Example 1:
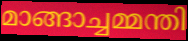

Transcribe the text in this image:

മാങ്ങാച്ചമ്മന്തി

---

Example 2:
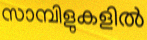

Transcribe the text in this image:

സാമ്പിളുകളിൽ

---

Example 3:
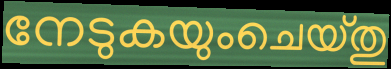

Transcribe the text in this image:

നേടുകയുംചെയ്തു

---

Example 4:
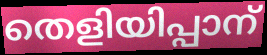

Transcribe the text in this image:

തെളിയിപ്പാന്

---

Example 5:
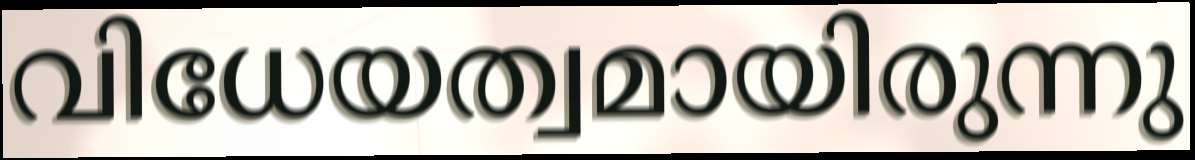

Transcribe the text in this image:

വിധേയത്വമായിരുന്നു